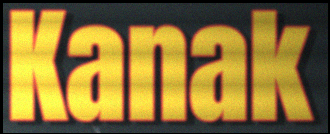
Kanak